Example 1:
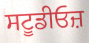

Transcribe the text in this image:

ਸਟੂਡੀਓਜ਼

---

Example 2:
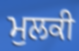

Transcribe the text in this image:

ਮੁਲਕੀ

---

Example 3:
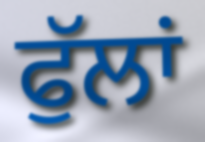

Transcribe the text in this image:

ਫੁੱਲਾਂ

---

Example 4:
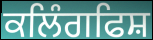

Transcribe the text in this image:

ਕਲਿੰਗਫਿਸ਼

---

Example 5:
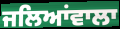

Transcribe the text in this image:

ਜਲਿਆਂਵਾਲਾ